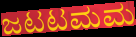
ಜಟಟಮಮ